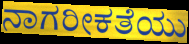
ನಾಗರೀಕತೆಯು